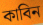
কাবিন